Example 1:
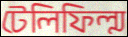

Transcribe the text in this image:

টেলিফিল্ম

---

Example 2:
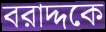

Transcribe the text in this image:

বরাদ্দকে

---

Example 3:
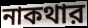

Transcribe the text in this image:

নাকথার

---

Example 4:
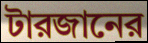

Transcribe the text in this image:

টারজানের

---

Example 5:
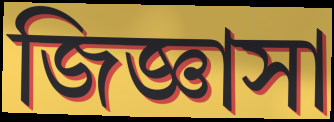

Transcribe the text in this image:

জিজ্ঞাসা